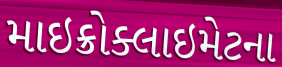
માઇક્રોક્લાઇમેટના